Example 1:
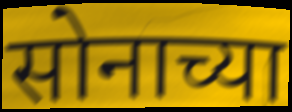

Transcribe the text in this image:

सोनाच्या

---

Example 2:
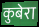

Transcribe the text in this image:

कुबेरा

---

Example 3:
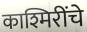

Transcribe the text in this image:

काश्मिरींचे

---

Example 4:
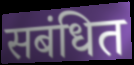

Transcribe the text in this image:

सबंधित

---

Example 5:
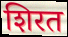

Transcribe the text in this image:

शिरत